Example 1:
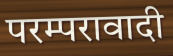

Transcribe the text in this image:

परम्परावादी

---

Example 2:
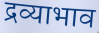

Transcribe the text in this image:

द्रव्याभाव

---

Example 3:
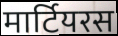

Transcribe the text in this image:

मार्टियरस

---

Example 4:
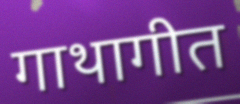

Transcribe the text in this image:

गाथागीत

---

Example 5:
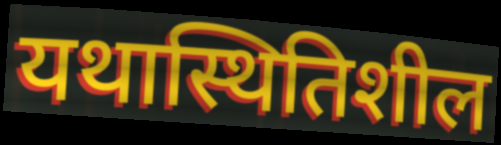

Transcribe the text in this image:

यथास्थितिशील